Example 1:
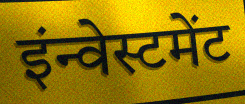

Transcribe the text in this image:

इंन्वेस्टमेंट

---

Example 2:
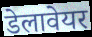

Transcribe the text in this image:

डेलावेयर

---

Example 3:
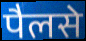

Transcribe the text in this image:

पैलसे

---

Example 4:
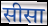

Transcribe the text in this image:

सीसा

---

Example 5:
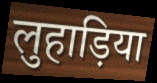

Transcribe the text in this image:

लुहाड़िया